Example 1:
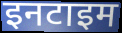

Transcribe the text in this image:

इनटाइम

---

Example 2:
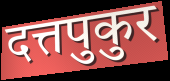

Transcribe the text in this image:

दत्तपुकुर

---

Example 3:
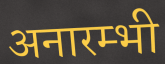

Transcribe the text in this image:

अनारम्भी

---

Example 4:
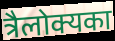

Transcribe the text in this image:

त्रैलोक्यका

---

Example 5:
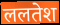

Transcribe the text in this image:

ललतेश